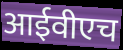
आईवीएच